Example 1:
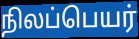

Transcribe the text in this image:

நிலப்பெயர்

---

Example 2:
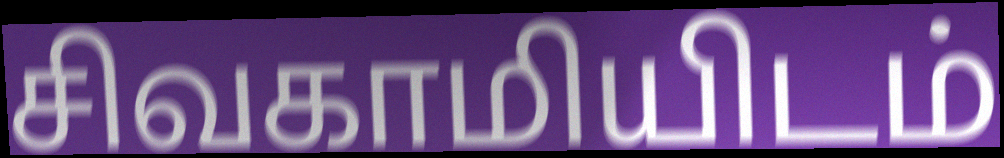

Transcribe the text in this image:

சிவகாமியிடம்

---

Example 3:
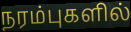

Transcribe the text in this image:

நரம்புகளில்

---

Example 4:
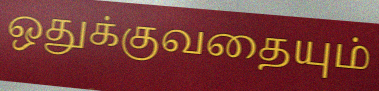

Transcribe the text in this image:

ஒதுக்குவதையும்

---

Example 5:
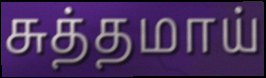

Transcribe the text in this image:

சுத்தமாய்